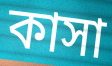
কাসা